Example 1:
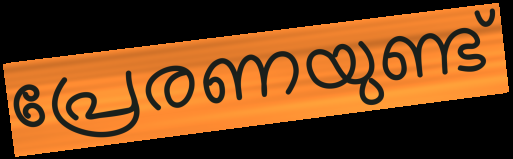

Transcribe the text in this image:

പ്രേരണയുണ്ട്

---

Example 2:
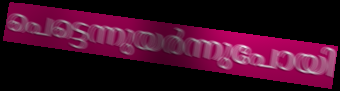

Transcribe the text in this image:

പെട്ടെന്നുയർന്നുപോയി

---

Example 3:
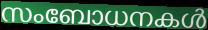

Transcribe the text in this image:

സംബോധനകൾ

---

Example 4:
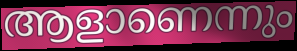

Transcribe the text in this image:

ആളാണെന്നും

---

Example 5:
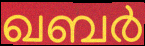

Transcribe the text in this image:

ഖബർ